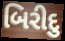
બિરીદુ